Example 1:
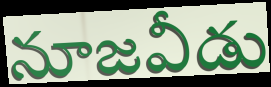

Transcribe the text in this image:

నూజవీడు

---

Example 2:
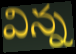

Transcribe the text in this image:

విన్న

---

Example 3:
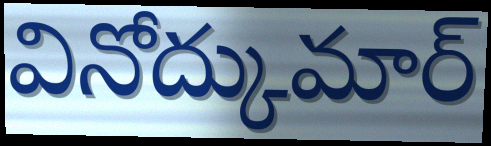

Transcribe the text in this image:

వినోద్కుమార్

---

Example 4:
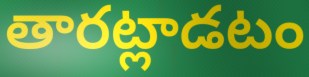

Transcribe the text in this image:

తారట్లాడటం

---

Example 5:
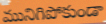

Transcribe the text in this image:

మునిగిపోకుండా